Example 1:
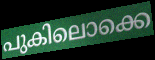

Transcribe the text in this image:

പുകിലൊക്കെ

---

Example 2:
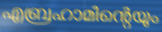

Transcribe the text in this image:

എബ്രഹാമിന്റെയും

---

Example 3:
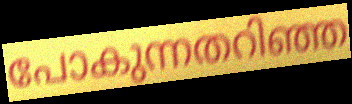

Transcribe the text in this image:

പോകുന്നതറിഞ്ഞ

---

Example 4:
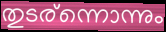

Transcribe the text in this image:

തുടര്ന്നൊന്നും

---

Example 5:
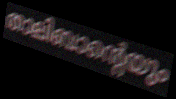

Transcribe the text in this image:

താലിബാന്റെയും